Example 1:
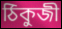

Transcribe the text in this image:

ঠিকুজী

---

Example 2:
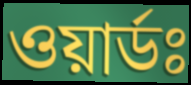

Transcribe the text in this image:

ওয়ার্ডঃ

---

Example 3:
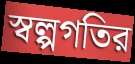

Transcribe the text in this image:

স্বল্পগতির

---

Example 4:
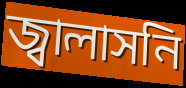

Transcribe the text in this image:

জ্বালাসনি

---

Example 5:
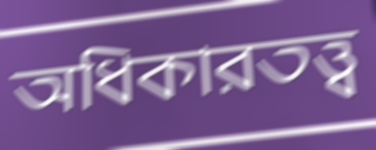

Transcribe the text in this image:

অধিকারতত্ত্ব